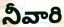
నీవారి